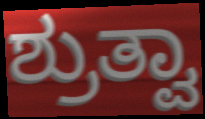
ಶ್ರುತ್ವಾ